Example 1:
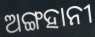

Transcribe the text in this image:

ଅଙ୍ଗହାନୀ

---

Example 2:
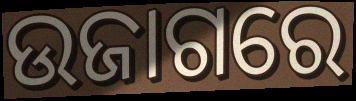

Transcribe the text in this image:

ଉଜାଗରେ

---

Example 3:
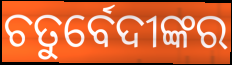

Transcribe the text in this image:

ଚତୁର୍ବେଦୀଙ୍କର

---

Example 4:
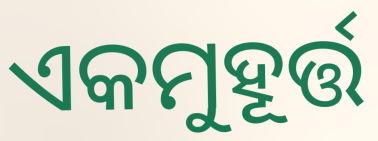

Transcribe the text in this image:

ଏକମୁହୂର୍ତ୍ତ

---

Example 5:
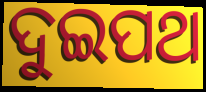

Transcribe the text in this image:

ଦୁଇପଥ